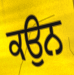
ਕਉਨ